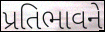
પ્રતિભાવને